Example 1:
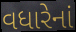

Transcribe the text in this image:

વધારેનાં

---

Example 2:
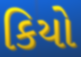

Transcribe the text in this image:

કિયો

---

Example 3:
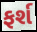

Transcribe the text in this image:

ફર્શ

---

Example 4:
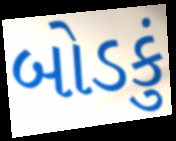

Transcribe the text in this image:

બોડકું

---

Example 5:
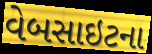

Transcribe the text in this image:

વેબસાઇટના